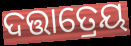
ଦତ୍ତାତ୍ରେୟ